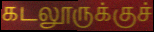
கடலூருக்குச்